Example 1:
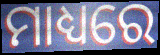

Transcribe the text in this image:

ମାଧ୍ୟରେ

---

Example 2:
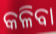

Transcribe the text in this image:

କଳିବା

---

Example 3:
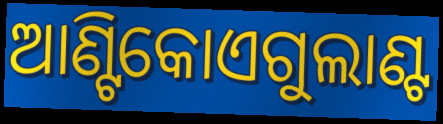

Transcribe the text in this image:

ଆଣ୍ଟିକୋଏଗୁଲାଣ୍ଟ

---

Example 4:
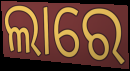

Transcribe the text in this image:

ଲାରେ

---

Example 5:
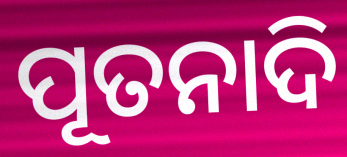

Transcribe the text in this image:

ପୂତନାଦି